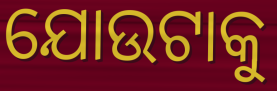
ଯୋଉଟାକୁ